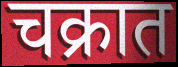
चक्रात